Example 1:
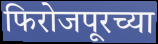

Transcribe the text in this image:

फिरोजपूरच्या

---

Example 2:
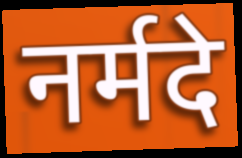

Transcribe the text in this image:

नर्मदे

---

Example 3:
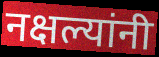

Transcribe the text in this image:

नक्षल्यांनी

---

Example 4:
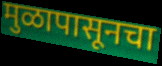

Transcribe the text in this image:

मुळापासूनचा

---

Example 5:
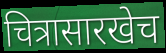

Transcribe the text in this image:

चित्रासारखेच